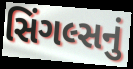
સિંગલ્સનું